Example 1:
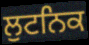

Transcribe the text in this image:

ਲੁਟਨਿਕ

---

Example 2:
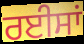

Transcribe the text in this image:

ਰਈਸਾਂ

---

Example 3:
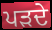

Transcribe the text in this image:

ਪੜਦੇ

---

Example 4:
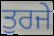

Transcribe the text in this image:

ਤੁਰਜੇ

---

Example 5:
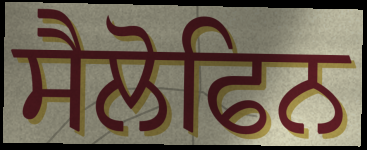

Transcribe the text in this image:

ਸੈਲੋਫਿਨ